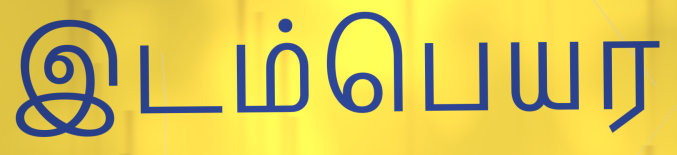
இடம்பெயர